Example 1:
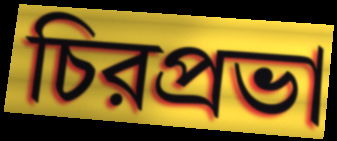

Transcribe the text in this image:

চিরপ্রভা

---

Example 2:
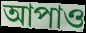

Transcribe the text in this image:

আপাও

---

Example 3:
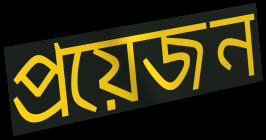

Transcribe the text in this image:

প্রয়েজন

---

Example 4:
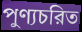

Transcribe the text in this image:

পুণ্যচরিত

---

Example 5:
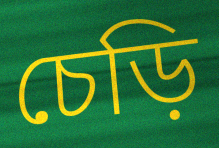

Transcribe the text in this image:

চেড়ি